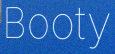
Booty